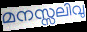
മനസ്സലിവു